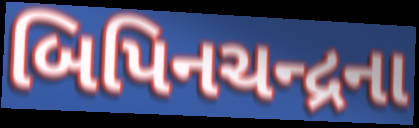
બિપિનચન્દ્રના